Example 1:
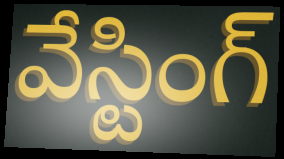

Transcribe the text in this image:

వేస్టింగ్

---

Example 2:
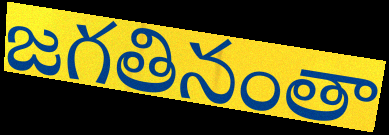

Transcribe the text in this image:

జగతినంతా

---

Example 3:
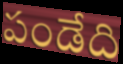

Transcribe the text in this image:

పండేది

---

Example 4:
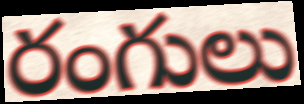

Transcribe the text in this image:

రంగులు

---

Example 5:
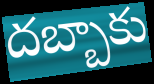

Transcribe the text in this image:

దబ్బాకు